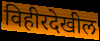
विहीरदेखील